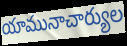
యామునాచార్యుల